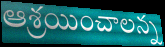
ఆశ్రయించాలన్న